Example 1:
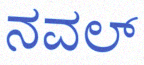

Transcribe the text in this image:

ನವಲ್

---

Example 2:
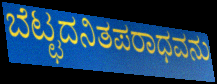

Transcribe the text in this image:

ಬೆಟ್ಟದನಿತಪರಾಧವನು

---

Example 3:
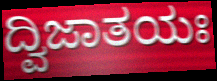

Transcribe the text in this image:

ದ್ವಿಜಾತಯಃ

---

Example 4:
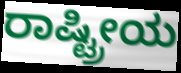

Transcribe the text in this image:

ರಾಷ್ಟ್ರೀಯ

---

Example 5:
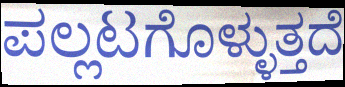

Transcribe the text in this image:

ಪಲ್ಲಟಗೊಳ್ಳುತ್ತದೆ